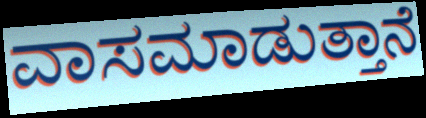
ವಾಸಮಾಡುತ್ತಾನೆ